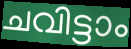
ചവിട്ടാം